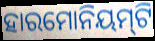
ହାରମୋନିୟମ୍‍ଟି